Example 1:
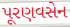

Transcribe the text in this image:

પૂરણવસેન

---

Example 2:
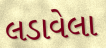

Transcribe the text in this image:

લડાવેલા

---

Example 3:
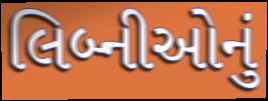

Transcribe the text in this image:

લિબ્નીઓનું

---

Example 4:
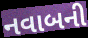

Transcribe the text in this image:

નવાબની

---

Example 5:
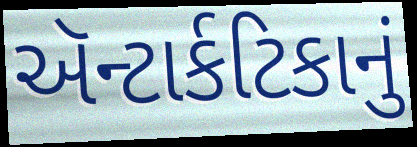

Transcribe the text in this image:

ઍન્ટાર્કટિકાનું